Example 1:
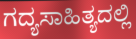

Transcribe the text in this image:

ಗದ್ಯಸಾಹಿತ್ಯದಲ್ಲಿ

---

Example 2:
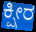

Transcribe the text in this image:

ಕ್ಷೀರ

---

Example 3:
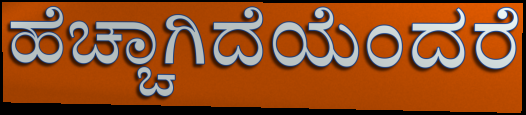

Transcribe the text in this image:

ಹೆಚ್ಚಾಗಿದೆಯೆಂದರೆ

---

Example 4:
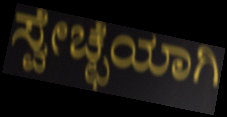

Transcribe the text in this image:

ಸ್ವೇಚ್ಛೆಯಾಗಿ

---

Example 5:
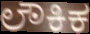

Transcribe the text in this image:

ಲೌಕಿಕ